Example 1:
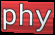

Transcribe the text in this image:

phy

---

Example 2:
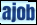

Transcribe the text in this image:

ajob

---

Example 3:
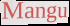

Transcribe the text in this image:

Mangu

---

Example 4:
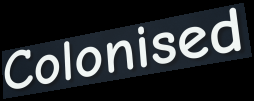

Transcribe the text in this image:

Colonised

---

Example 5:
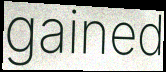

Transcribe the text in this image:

gained